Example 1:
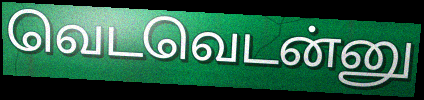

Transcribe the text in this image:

வெடவெடன்னு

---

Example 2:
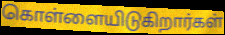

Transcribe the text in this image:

கொள்ளையிடுகிறார்கள்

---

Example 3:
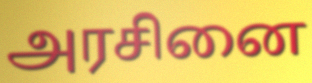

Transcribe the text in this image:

அரசினை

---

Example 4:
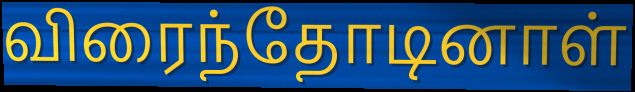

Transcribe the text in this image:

விரைந்தோடினாள்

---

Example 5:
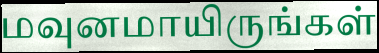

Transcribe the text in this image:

மவுனமாயிருங்கள்